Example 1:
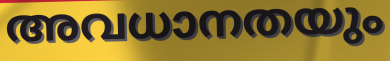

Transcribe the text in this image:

അവധാനതയും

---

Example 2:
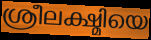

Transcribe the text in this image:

ശ്രീലക്ഷ്മിയെ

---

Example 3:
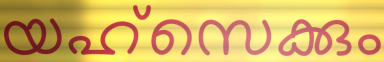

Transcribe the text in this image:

യഹ്സെക്കും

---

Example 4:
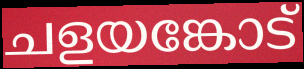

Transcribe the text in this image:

ചളയങ്കോട്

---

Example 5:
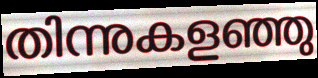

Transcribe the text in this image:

തിന്നുകളഞ്ഞു